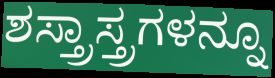
ಶಸ್ತ್ರಾಸ್ತ್ರಗಳನ್ನೂ